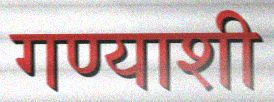
गण्याशी